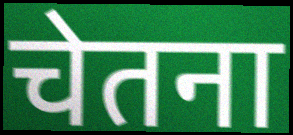
चेतना